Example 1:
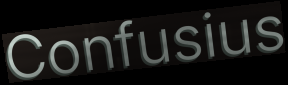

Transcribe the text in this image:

Confusius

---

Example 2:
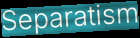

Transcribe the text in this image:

Separatism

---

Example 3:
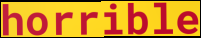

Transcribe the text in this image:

horrible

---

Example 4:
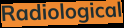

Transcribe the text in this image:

Radiological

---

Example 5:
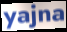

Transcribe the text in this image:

yajna